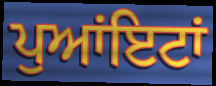
ਪੁਆਂਇਟਾਂ